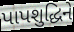
પાપશુદ્ધિને